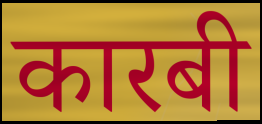
कारबी